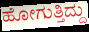
ಹೋಗುತ್ತಿದ್ದು